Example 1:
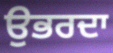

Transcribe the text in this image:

ਉਭਰਦਾ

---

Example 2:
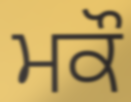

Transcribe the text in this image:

ਮਕੌ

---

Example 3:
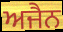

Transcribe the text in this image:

ਅਜੈਨ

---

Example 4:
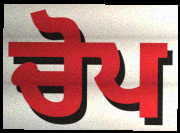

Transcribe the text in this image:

ਚੋਪ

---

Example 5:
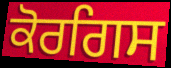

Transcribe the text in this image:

ਕੋਰਗਿਸ